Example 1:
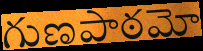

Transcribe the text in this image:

గుణపాఠమో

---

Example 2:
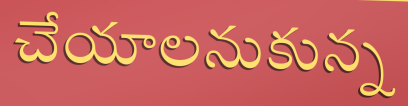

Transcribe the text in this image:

చేయాలనుకున్న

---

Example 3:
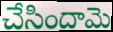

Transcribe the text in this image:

చేసిందామె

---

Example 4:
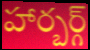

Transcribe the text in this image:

హార్బర్గ్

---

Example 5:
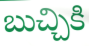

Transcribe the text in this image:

బుచ్చికి